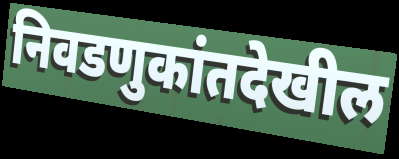
निवडणुकांतदेखील